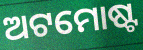
ଅଟମୋଷ୍ଟ